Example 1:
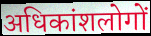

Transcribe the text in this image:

अधिकांशलोगों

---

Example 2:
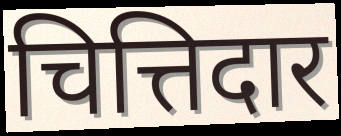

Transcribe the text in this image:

चित्तिदार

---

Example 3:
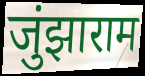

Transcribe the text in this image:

जुंझाराम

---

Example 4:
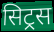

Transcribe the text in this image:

सिट्रस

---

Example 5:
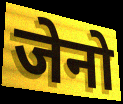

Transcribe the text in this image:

जेनो